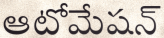
ఆటోమేషన్